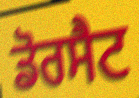
ਡੋਰਸੈਟ